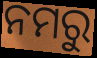
ନମରୁ